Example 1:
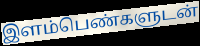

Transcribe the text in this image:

இளம்பெண்களுடன்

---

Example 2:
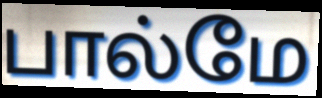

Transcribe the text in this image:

பால்மே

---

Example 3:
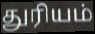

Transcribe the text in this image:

துரியம்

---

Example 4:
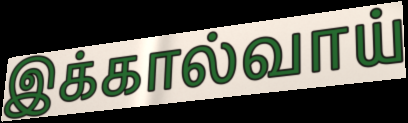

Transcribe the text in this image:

இக்கால்வாய்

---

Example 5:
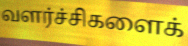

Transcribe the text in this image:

வளர்ச்சிகளைக்